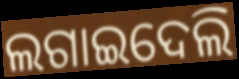
ଲଗାଇଦେଲି